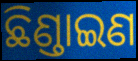
ଛିଣ୍ଡାଇଣ